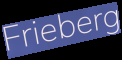
Frieberg